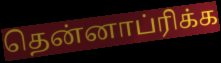
தென்னாப்ரிக்க